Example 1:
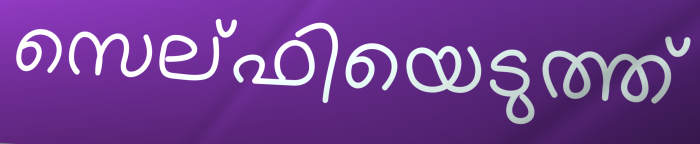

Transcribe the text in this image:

സെല്ഫിയെടുത്ത്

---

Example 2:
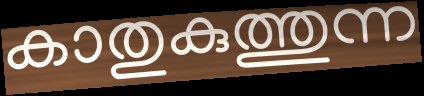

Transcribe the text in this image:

കാതുകുത്തുന്ന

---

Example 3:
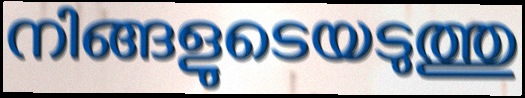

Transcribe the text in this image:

നിങ്ങളുടെയടുത്തു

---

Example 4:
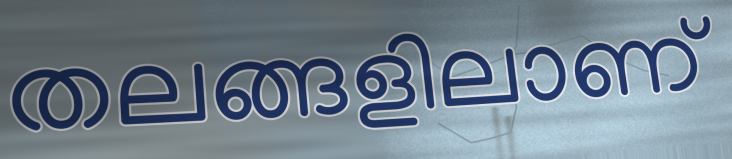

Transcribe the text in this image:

തലങ്ങളിലാണ്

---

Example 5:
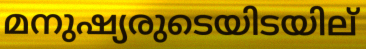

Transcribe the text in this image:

മനുഷ്യരുടെയിടയില്